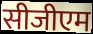
सीजीएम